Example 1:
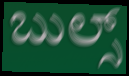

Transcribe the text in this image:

ಬುಲ್ಸ್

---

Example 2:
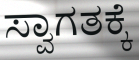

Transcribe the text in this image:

ಸ್ವಾಗತಕ್ಕೆ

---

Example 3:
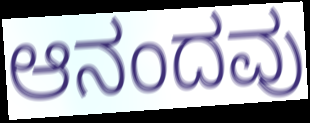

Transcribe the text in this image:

ಆನಂದವು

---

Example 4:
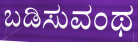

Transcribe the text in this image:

ಬಡಿಸುವಂಥ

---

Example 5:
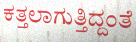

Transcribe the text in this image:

ಕತ್ತಲಾಗುತ್ತಿದ್ದಂತೆ